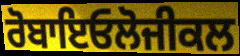
ਰੋਬਾਇਓਲੋਜੀਕਲ